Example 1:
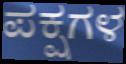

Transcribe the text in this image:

ಪಕ್ಷಗಳ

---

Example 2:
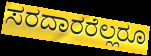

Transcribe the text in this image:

ಸರದಾರರೆಲ್ಲರೂ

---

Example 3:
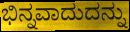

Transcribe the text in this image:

ಭಿನ್ನವಾದುದನ್ನು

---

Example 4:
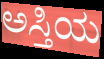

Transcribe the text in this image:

ಅಸ್ತಿಯ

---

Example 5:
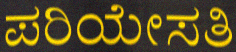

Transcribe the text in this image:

ಪರಿಯೇಸತಿ